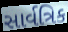
સાર્વત્રિક